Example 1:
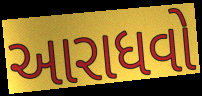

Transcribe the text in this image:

આરાધવો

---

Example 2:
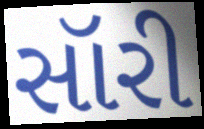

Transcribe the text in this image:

સૉરી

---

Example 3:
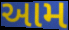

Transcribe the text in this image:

આમ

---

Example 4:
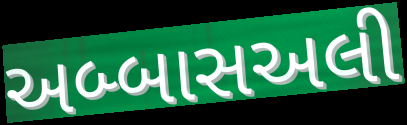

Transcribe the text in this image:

અબ્બાસઅલી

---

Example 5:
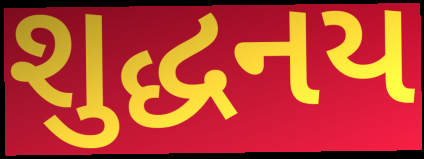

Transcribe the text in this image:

શુદ્ધનય